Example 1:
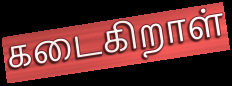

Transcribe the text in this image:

கடைகிறாள்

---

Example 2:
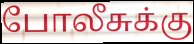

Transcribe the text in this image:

போலீசுக்கு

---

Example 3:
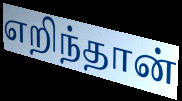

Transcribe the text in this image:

எறிந்தான்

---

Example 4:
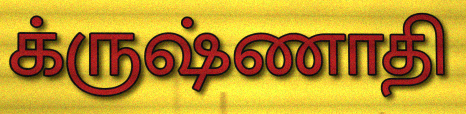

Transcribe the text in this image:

க்ருஷ்ணாதி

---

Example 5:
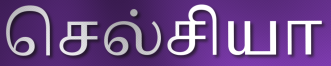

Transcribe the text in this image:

செல்சியா